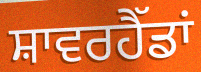
ਸ਼ਾਵਰਹੈੱਡਾਂ